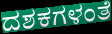
ದಶಕಗಳಂತೆ